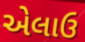
એલાઉ